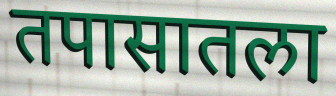
तपासातला